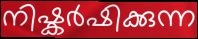
നിഷ്കർഷിക്കുന്ന